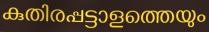
കുതിരപ്പട്ടാളത്തെയും